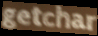
getchar